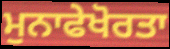
ਮੁਨਾਫੇਖੋਰਤਾ